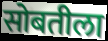
सोबतीला